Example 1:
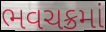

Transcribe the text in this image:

ભવચક્રમાં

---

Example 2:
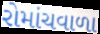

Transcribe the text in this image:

રોમાંચવાળા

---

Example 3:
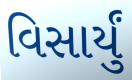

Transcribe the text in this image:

વિસાર્યું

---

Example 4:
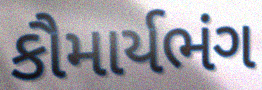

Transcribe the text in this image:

કૌમાર્યભંગ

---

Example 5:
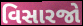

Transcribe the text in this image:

વિસારજો